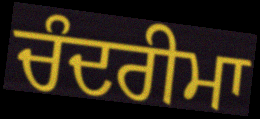
ਚੰਦਰੀਮਾ